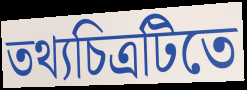
তথ্যচিত্রটিতে